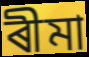
ৰীমা